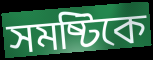
সমষ্টিকে